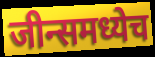
जीन्समध्येच